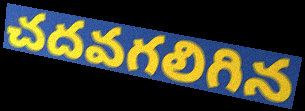
చదవగలిగిన